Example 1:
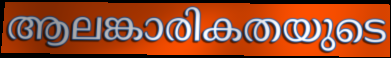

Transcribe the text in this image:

ആലങ്കാരികതയുടെ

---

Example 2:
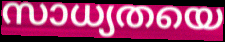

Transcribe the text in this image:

സാധ്യതയെ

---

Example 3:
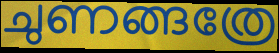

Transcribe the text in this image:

ചുണങ്ങത്രേ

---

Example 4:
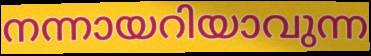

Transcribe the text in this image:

നന്നായറിയാവുന്ന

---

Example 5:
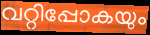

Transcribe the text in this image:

വറ്റിപ്പോകയും